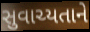
સુવાચ્યતાને